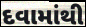
દવામાંથી